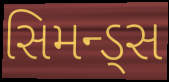
સિમન્ડ્સ